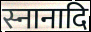
स्नानादि